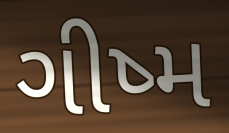
ગીષ્મ